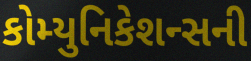
કોમ્યુનિકેશન્સની